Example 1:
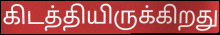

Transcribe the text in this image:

கிடத்தியிருக்கிறது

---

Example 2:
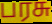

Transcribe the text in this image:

பரசு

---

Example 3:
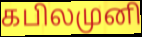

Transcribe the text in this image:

கபிலமுனி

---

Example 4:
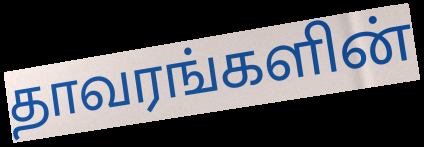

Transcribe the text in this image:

தாவரங்களின்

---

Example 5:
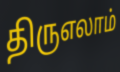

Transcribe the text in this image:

திருஎலாம்